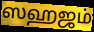
ஸஹஜம்